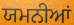
ਯਮਨੀਆਂ